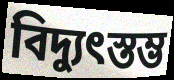
বিদ্যুৎস্তম্ভ